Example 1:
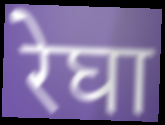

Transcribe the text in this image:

रेघा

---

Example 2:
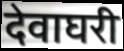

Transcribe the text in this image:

देवाघरी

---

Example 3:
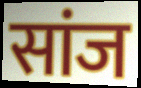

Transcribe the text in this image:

सांज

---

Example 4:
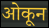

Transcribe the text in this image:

ओकून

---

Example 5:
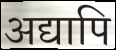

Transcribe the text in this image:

अद्यापि